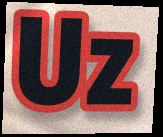
Uz